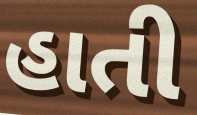
હાતી